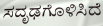
ಸದೃಢಗೊಳಿಸಿದೆ